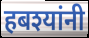
हबश्यांनी